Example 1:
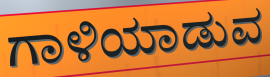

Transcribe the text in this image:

ಗಾಳಿಯಾಡುವ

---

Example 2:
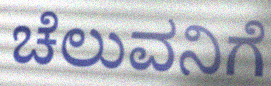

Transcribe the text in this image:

ಚೆಲುವನಿಗೆ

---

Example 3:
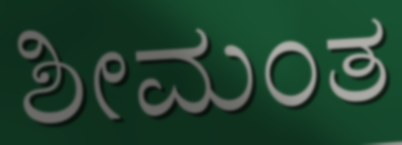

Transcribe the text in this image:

ಶೀಮಂತ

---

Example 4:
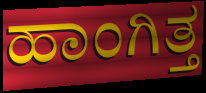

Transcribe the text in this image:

ಹಾಂಗಿತ್ತ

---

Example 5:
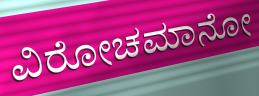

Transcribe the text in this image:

ವಿರೋಚಮಾನೋ